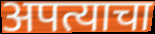
अपत्याचा